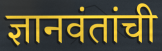
ज्ञानवंतांची